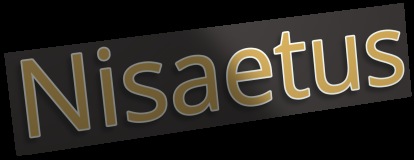
Nisaetus